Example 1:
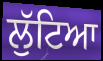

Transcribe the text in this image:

ਲੁੱਟਿਆ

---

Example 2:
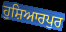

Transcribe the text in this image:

ਹੁਸ਼ਿਆਰਪੁਰ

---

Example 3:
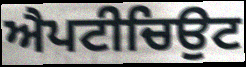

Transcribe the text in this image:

ਐਪਟੀਚਿਉਟ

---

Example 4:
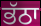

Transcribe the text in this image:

ਭੱਠਾ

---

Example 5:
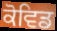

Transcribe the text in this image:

ਕੋਵਿਡ